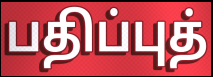
பதிப்புத்